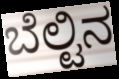
ಬೆಲ್ಟಿನ